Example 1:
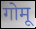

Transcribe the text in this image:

गोमू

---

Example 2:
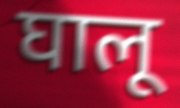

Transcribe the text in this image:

घालू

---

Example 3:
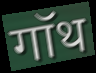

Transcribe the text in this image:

गॉथ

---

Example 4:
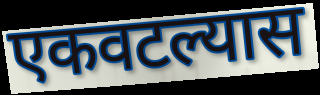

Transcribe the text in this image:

एकवटल्यास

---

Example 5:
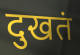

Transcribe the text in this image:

दुखतं